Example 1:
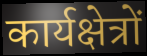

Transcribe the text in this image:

कार्यक्षेत्रों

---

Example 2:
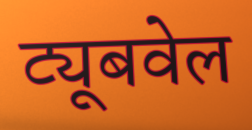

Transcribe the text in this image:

ट्यूबवेल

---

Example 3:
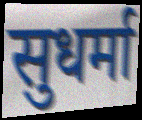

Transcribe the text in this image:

सुधर्मा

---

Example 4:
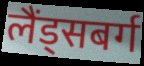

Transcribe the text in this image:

लैंड्सबर्ग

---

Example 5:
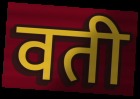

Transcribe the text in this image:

वती